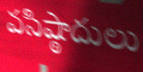
వసిష్ఠాదులు